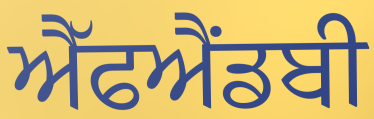
ਐੱਫਐਂਡਬੀ